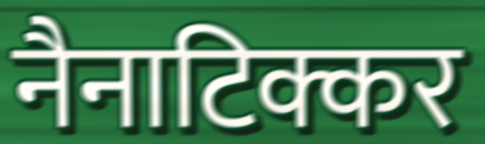
नैनाटिक्कर